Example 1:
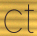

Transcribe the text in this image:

ct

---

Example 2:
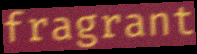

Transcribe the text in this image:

fragrant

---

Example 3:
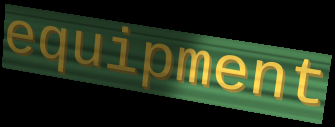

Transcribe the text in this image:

equipment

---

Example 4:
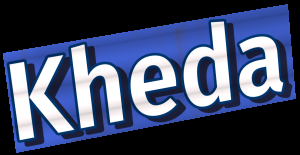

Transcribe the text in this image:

Kheda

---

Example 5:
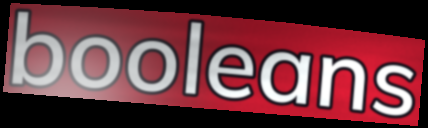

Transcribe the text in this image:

booleans